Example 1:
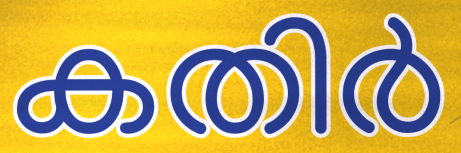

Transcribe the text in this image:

കതിർ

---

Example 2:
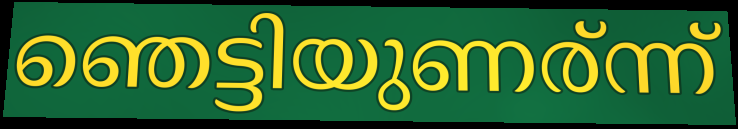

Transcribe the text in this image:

ഞെട്ടിയുണര്ന്ന്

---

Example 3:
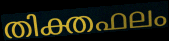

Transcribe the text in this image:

തിക്തഫലം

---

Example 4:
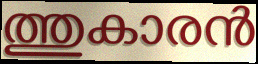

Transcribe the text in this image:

ത്തുകാരൻ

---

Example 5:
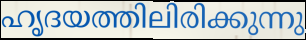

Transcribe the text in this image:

ഹൃദയത്തിലിരിക്കുന്നു